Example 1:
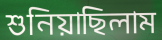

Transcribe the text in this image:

শুনিয়াছিলাম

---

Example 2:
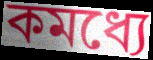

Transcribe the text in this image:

কমধ্যে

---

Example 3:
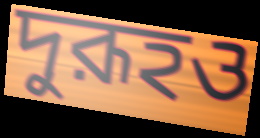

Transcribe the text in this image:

দুরূহও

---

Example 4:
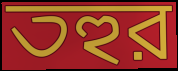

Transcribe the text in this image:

তহুর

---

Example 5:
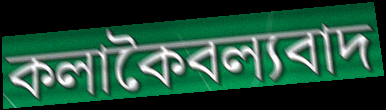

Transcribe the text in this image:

কলাকৈবল্যবাদ